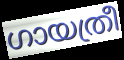
ഗായത്രീ